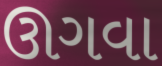
ઊગવા